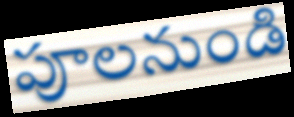
పూలనుండి